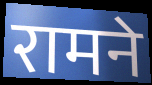
रामने